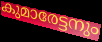
കുമാരേട്ടനും